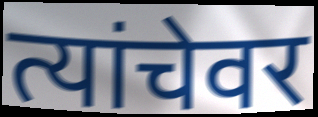
त्यांचेवर